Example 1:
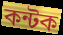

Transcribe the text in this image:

কন্টক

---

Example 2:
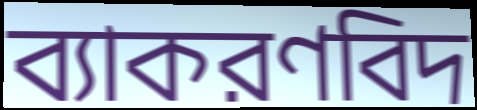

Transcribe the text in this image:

ব্যাকরণবিদ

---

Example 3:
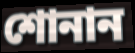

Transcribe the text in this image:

শোনান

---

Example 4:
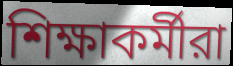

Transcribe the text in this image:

শিক্ষাকর্মীরা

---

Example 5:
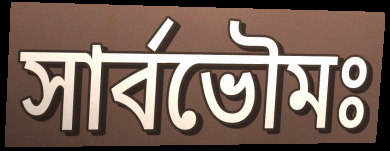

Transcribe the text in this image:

সার্বভৌমঃ